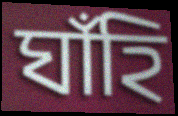
ঘাঁহি